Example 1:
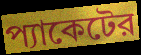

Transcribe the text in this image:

প্যাকেটের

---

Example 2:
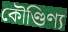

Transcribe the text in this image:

কৌণ্ডিণ্য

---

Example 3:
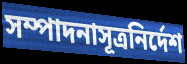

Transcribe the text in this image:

সম্পাদনাসূত্রনির্দেশ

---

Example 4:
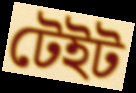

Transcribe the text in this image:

টেইট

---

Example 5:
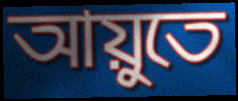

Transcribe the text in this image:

আয়ুতে